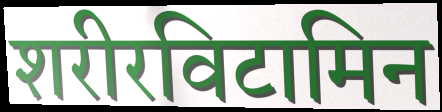
शरीरविटामिन